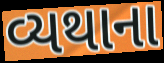
વ્યથાના